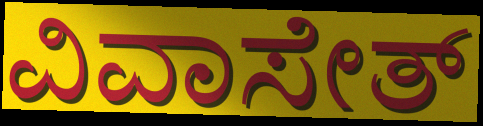
ವಿವಾಸೇತ್